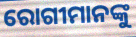
ରୋଗୀମାନଙ୍କୁ